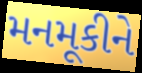
મનમૂકીને